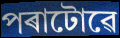
পৰাটোৱে